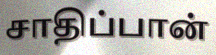
சாதிப்பான்